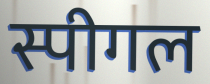
स्पीगल